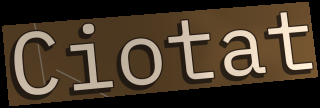
Ciotat